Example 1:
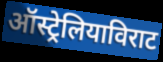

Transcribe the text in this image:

ऑस्ट्रेलियाविराट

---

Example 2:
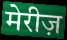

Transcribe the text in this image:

मेरीज़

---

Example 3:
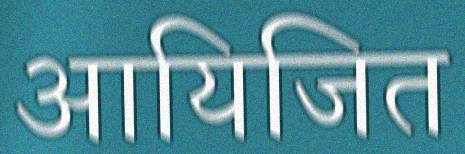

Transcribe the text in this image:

आयिजित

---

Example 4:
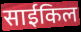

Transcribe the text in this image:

साईकिल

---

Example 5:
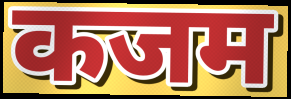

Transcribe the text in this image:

कजम